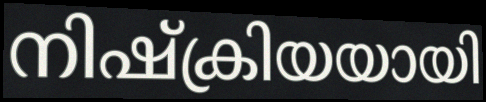
നിഷ്ക്രിയയായി